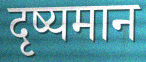
दृष्यमान